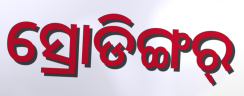
ସ୍ରୋଡିଙ୍ଗର୍